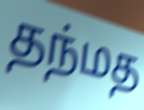
தந்மத